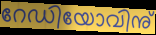
റേഡിയോവിനു്